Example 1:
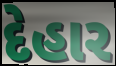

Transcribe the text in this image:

દેહાર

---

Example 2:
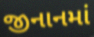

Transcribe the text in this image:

જીનાનમાં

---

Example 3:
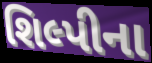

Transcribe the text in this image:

શિલ્પીના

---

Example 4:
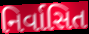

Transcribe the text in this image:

નિર્વાસિત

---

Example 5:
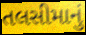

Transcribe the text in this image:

તલસીમાનું